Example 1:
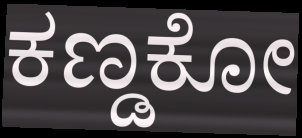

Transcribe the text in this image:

ಕಣ್ಡಕೋ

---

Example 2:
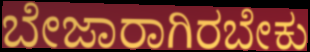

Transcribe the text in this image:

ಬೇಜಾರಾಗಿರಬೇಕು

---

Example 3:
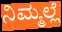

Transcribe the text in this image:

ನಿಮ್ಮಲ್ಲೆ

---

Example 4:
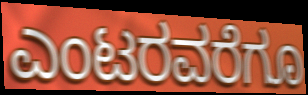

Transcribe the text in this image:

ಎಂಟರವರೆಗೂ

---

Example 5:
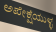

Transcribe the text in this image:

ಅಪೇಕ್ಷೆಯುಳ್ಳ